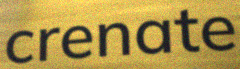
crenate